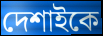
দেশাইকে